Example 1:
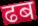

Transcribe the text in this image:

ढब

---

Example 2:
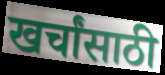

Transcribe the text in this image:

खर्चांसाठी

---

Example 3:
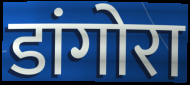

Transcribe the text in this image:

डांगोरा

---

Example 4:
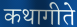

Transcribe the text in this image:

कथागीते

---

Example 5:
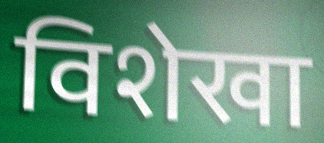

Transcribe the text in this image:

विशेखा